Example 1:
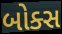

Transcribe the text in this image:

બોક્સ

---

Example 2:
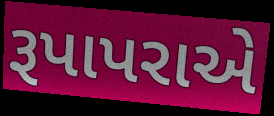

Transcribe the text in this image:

રૂપાપરાએ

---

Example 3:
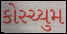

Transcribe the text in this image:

કોસ્ચ્યુમ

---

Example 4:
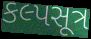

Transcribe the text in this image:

કલ્પસૂત્ર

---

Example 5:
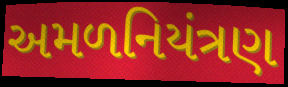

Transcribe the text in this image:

અમળનિયંત્રણ